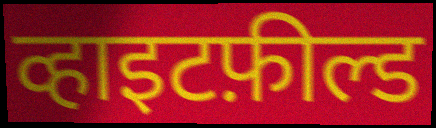
व्हाइटफ़ील्ड